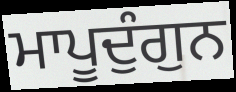
ਮਾਪੂਦੁੰਗੁਨ